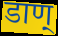
डाण्